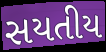
સયતીય